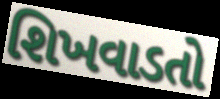
શિખવાડતો